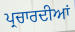
ਪ੍ਰਚਾਰਦੀਆਂ